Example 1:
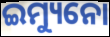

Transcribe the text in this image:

ଇମ୍ୟୁନୋ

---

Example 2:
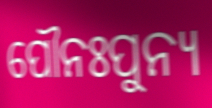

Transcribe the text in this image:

ପୌନଃପୁନ୍ୟ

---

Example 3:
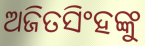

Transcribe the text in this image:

ଅଜିତସିଂହଙ୍କୁ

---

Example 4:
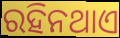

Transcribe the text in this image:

ରହିନଥାଏ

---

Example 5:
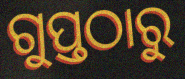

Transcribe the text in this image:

ଗୁପ୍ତଠାରୁ